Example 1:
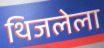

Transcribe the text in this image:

थिजलेला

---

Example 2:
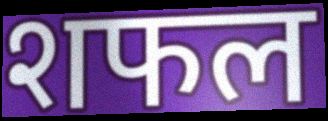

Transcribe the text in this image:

शफल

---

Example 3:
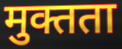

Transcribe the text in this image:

मुक्तता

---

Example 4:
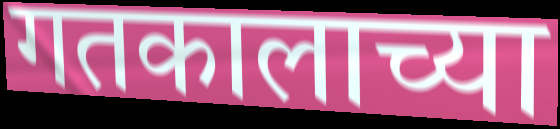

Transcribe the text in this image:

गतकालाच्या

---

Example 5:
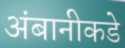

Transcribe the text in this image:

अंबानीकडे